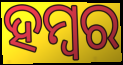
ହମ୍ବର